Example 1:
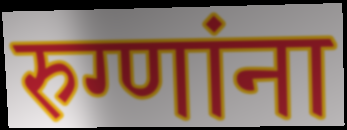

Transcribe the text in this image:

रुग्णांना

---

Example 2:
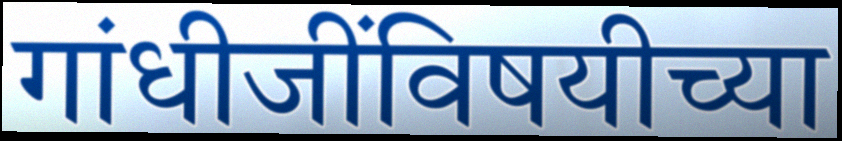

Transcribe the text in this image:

गांधीजींविषयीच्या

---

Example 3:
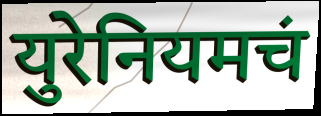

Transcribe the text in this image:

युरेनियमचं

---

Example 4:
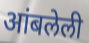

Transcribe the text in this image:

आंबलेली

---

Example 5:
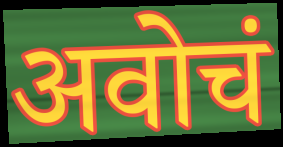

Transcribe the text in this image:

अवोचं